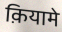
क़ियामे